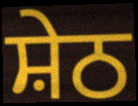
ਸ਼ੇਠ